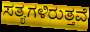
ಸತ್ಯಗಳಿರುತ್ತವೆ